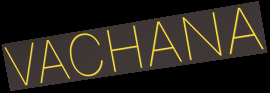
VACHANA